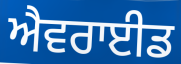
ਐਵਰਾਈਡ